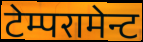
टेम्परामेन्ट